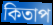
কিতাপ